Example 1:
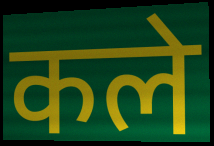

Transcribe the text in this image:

कले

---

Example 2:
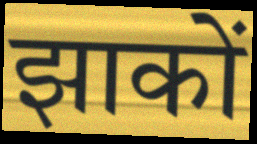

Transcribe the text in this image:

झाकों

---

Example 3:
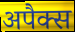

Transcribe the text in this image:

अपैक्स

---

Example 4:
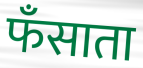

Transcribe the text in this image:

फँसाता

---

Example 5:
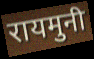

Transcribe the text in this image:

रायमुनी